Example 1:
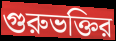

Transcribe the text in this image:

গুরুভক্তির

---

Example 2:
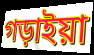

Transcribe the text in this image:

গড়াইয়া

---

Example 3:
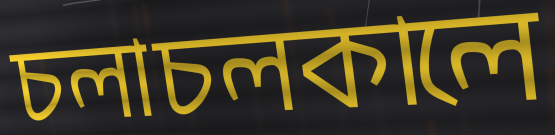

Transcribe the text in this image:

চলাচলকালে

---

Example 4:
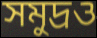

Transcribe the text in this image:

সমুদ্রও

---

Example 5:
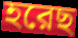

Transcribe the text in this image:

হরেছ